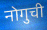
नोगुची